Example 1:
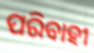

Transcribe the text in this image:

ପରିବାହୀ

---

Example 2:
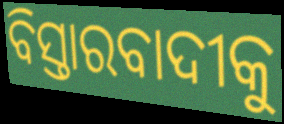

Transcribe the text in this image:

ବିସ୍ତାରବାଦୀକୁ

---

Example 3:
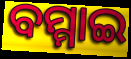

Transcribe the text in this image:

ବମ୍ମାଇ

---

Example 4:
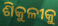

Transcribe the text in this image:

ଶିକୁଳୀକୁ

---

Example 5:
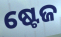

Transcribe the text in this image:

ଷ୍ଟେଜ